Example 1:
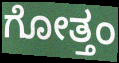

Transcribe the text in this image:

ಗೋತ್ತಂ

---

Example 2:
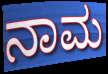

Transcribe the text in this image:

ನಾಮ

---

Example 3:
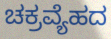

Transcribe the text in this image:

ಚಕ್ರವ್ಯೆಹದ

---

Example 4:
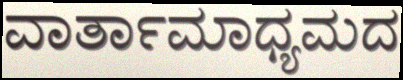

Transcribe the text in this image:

ವಾರ್ತಾಮಾಧ್ಯಮದ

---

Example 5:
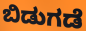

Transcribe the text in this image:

ಬಿಡುಗಡೆ